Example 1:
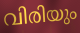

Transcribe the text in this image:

വിരിയും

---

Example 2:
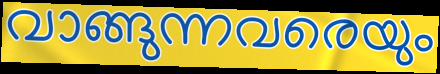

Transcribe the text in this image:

വാങ്ങുന്നവരെയും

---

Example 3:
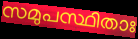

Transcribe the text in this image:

സമുപസ്ഥിതാഃ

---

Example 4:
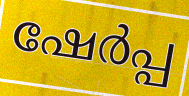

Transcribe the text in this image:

ഷേർപ്പ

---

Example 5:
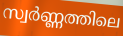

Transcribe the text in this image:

സ്വർണ്ണത്തിലെ